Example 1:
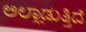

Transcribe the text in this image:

ಅಲ್ಲಾಡುತ್ತಿದೆ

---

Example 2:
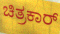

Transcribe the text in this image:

ಚಿತ್ರಕಾರ್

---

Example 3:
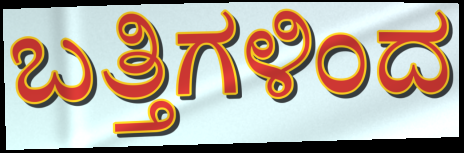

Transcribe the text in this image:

ಬತ್ತಿಗಳಿಂದ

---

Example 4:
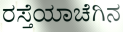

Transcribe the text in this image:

ರಸ್ತೆಯಾಚೆಗಿನ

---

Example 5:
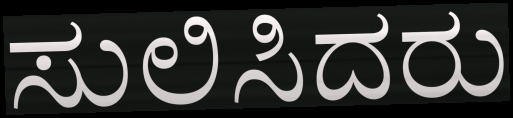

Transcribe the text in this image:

ಸುಲಿಸಿದರು